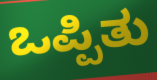
ಒಪ್ಪಿತು